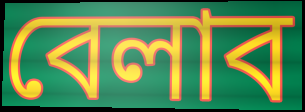
বেলাব